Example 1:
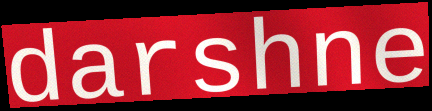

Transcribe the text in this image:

darshne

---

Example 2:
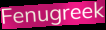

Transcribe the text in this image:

Fenugreek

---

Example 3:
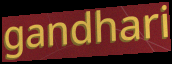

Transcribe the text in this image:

gandhari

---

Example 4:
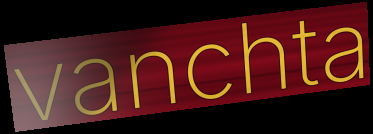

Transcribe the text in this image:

vanchta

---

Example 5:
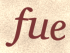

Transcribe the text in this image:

fue